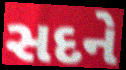
સદને